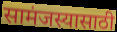
सामंजस्यासाठी